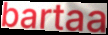
bartaa